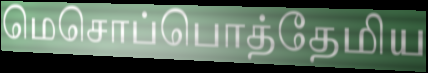
மெசொப்பொத்தேமிய